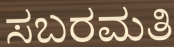
ಸಬರಮತಿ